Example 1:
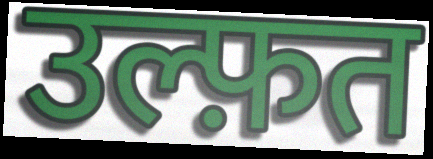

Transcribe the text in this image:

उल्फ़त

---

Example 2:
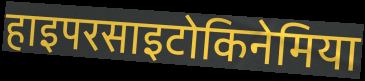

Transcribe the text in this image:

हाइपरसाइटोकिनेमिया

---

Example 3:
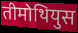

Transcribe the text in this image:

तीमोथियुस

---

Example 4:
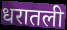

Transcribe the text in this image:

धरातली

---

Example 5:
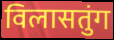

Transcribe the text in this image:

विलासतुंग